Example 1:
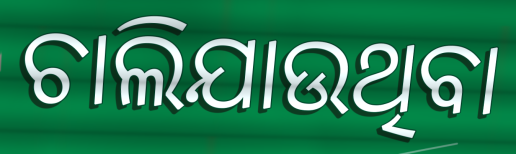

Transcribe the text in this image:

ଚାଲିଯାଉଥିବା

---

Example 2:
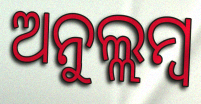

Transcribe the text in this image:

ଅନୁଲ୍ଲମ୍ବ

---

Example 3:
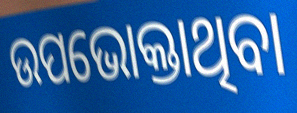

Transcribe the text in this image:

ଉପଭୋକ୍ତାଥିବା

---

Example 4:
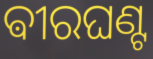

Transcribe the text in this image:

ଵୀରଘଣ୍ଟ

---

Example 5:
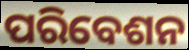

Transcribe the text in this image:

ପରିବେଶନ